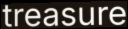
treasure